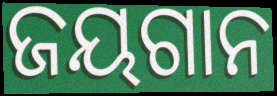
ଜୟଗାନ